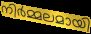
നിർമ്മലമായി